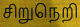
சிறுநெறி